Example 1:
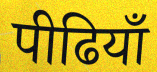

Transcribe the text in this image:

पीढियाँ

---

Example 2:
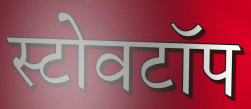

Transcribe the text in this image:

स्टोवटॉप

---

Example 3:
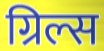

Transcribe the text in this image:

ग्रिल्स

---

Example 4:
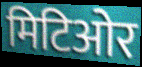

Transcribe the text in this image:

मिटिओर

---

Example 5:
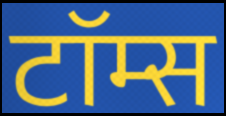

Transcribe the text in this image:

टॉम्स